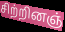
சிற்றினஞ்